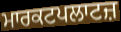
ਮਾਰਕਟਪਲਾਟਜ਼